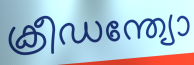
ക്രീഡന്ത്യോ